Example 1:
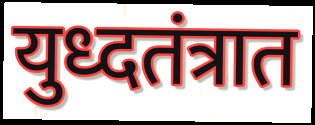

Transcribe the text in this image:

युध्दतंत्रात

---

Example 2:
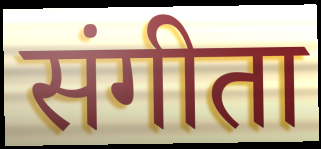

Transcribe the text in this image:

संगीता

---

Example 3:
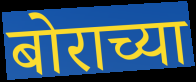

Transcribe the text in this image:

बोराच्या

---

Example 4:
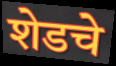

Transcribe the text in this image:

शेडचे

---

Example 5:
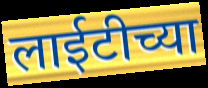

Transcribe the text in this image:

लाईटीच्या